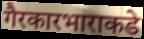
गैरकारभाराकडे